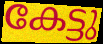
കേട്ടു